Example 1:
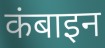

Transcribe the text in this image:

कंबाइन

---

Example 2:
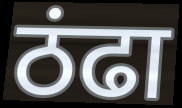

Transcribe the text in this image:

ठंढा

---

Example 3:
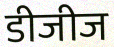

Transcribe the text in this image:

डीजीज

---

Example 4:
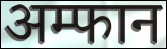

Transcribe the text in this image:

अम्फान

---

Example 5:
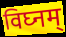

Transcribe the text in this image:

विघ्नम्